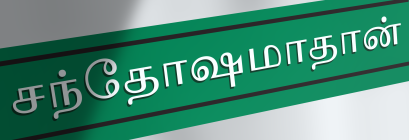
சந்தோஷமாதான்